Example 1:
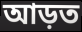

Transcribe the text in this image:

আড়ত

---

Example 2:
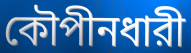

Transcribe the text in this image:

কৌপীনধারী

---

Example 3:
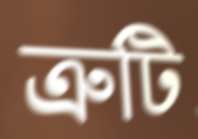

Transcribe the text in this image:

ত্রুটি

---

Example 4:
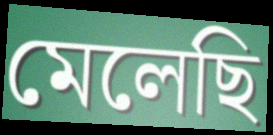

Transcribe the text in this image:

মেলেছি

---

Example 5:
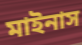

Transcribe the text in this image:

মাইনাস